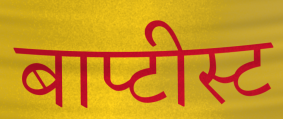
बाप्टीस्ट